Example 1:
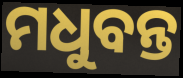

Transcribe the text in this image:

ମଧୁବନ୍ତ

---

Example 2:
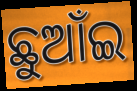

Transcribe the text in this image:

ଛୁଆଁଇ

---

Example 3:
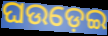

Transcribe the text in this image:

ଘଉଡ଼େଇ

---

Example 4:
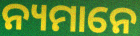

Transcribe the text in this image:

ନ୍ୟମାନେ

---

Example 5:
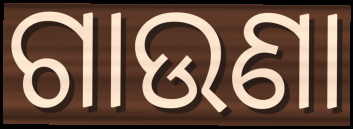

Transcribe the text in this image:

ଗାଉଣା